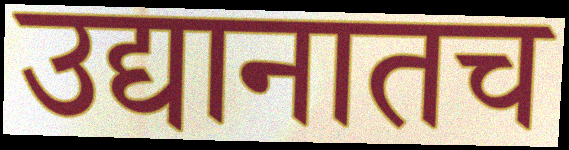
उद्यानातच